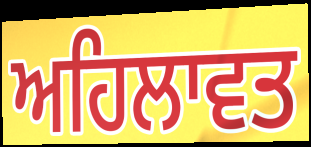
ਅਹਿਲਾਵਤ